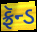
ફ્રૅન્ડ